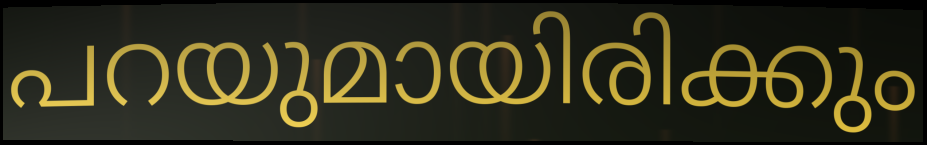
പറയുമായിരിക്കും